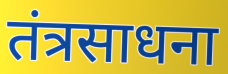
तंत्रसाधना